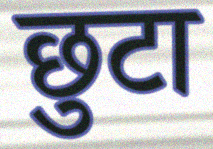
छुटा